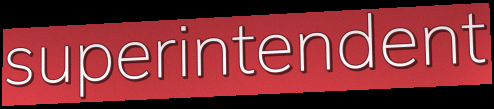
superintendent